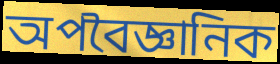
অপবৈজ্ঞানিক